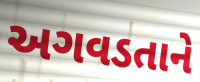
અગવડતાને